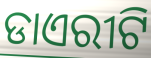
ଡାଏରୀଟି